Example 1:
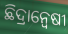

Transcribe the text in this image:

ଛିଦ୍ରାନ୍ୱେଷୀ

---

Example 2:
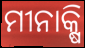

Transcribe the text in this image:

ମୀନାକ୍ଷି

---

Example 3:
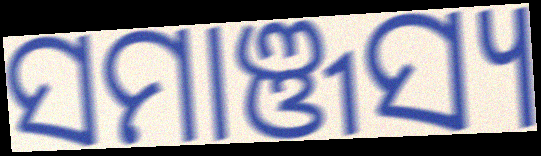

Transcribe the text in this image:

ସମାଞ୍ଜସ୍ୟ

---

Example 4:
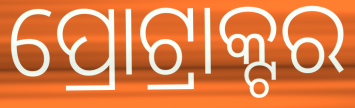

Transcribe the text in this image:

ପ୍ରୋଟ୍ରାକ୍ଟର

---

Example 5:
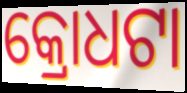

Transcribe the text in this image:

କ୍ରୋଧଟା